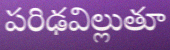
పరిఢవిల్లుతూ